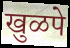
खुळपे